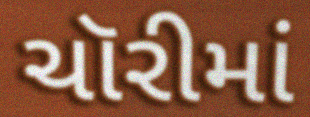
ચૉરીમાં